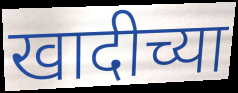
खादीच्या